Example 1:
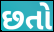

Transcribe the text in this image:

છતો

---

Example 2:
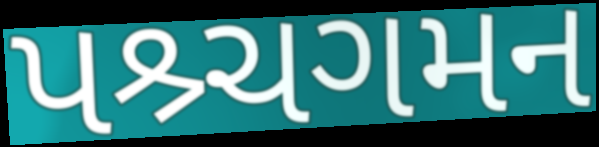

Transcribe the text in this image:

પશ્ર્ચગમન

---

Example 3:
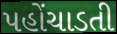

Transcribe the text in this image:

પહોંચાડતી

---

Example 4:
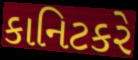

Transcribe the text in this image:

કાનિટકરે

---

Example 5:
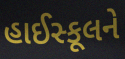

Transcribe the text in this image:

હાઈસ્કૂલને